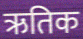
ऋतिक